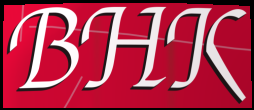
BHK